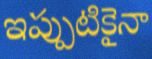
ఇప్పుటికైనా